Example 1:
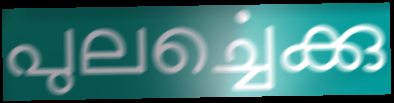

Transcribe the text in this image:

പുലൎച്ചെക്കു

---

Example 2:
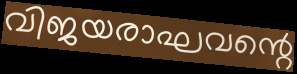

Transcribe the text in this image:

വിജയരാഘവന്റെ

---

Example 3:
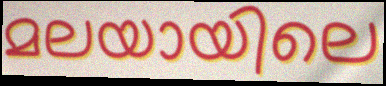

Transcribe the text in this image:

മലയായിലെ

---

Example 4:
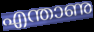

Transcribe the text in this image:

എന്താണു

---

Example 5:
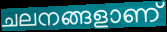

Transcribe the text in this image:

ചലനങ്ങളാണ്